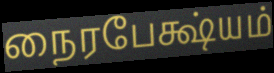
நைரபேக்ஷ்யம்